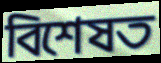
বিশেষত